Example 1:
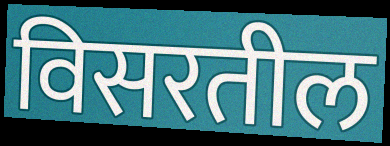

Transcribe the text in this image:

विसरतील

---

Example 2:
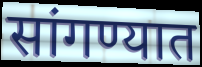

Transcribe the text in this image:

सांगण्यात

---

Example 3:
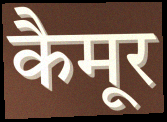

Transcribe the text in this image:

कैमूर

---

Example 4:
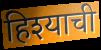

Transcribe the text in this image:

हिश्याची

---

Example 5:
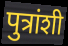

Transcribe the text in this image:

पुत्रांशी